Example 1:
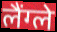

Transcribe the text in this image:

लैंग्ले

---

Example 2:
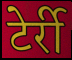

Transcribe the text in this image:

टेर्री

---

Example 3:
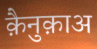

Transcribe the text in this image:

क़ैनुक़ाअ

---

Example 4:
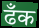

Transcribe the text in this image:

ढँक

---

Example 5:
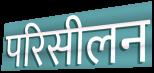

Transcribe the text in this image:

परिसीलन